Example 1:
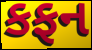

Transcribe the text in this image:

કફન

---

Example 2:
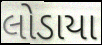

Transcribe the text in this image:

લોડાયા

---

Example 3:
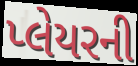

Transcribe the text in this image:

પ્લેયરની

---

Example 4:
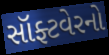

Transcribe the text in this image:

સૉફ્ટવેરનો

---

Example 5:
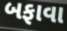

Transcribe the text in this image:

બફાવા